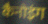
कैनोइंग